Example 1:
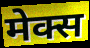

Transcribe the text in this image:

मेक्स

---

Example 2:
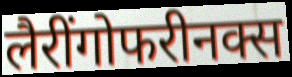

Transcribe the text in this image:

लैरींगोफरीनक्स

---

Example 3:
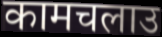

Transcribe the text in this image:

कामचलाउ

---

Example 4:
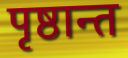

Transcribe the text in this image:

पृष्ठान्त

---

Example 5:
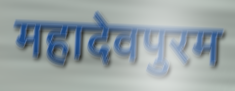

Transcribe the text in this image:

महादेवपुरम